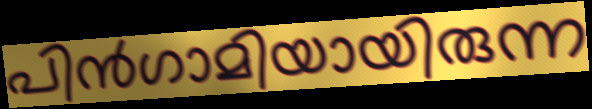
പിൻഗാമിയായിരുന്ന